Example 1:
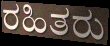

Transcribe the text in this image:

ರಹಿತರು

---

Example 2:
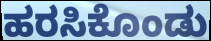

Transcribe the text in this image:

ಹರಸಿಕೊಂಡು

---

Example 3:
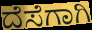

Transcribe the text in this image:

ದೆಸೆಗಾಗಿ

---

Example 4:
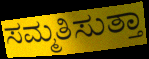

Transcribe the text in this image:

ಸಮ್ಮತಿಸುತ್ತಾ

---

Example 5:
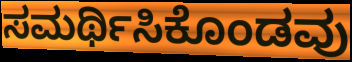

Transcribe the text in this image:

ಸಮರ್ಥಿಸಿಕೊಂಡವು